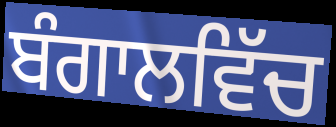
ਬੰਗਾਲਵਿੱਚ